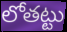
లోతట్టు